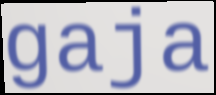
gaja